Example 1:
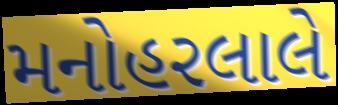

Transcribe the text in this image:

મનોહરલાલે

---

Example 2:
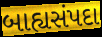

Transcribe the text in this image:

બાહ્યસંપદા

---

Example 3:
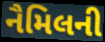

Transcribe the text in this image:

નૈમિલની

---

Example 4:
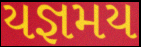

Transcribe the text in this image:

યજ્ઞમય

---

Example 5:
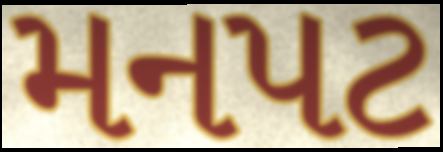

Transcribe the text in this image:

મનપટ